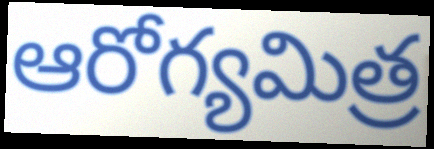
ఆరోగ్యమిత్ర